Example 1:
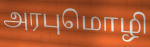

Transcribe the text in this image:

அரபுமொழி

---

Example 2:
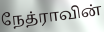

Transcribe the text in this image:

நேத்ராவின்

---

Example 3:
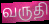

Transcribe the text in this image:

வருதி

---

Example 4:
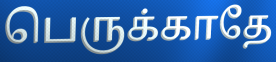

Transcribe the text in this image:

பெருக்காதே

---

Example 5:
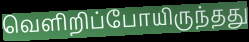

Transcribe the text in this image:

வெளிறிப்போயிருந்தது